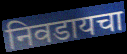
निवडायचा